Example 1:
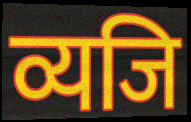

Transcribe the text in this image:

व्यजि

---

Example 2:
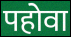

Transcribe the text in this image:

पहोवा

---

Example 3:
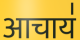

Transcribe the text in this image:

आचाय॑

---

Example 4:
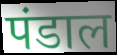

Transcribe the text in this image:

पंडाल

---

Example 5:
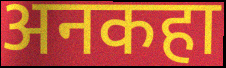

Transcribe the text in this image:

अनकहा